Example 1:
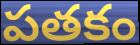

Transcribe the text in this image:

పతకం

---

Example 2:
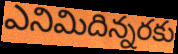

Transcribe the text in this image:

ఎనిమిదిన్నరకు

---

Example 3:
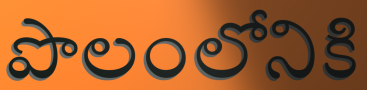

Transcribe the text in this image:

పొలంలోనికి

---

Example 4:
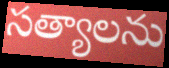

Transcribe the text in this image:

సత్యాలను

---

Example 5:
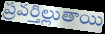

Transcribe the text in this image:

ప్రవర్తిల్లుతాయి